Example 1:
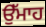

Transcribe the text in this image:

ਉੱਮਾਹ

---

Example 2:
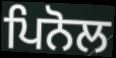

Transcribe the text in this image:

ਪਿਨੋਲ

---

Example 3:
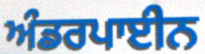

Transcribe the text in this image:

ਅੰਡਰਪਾਈਨ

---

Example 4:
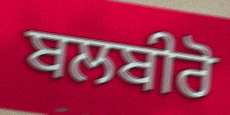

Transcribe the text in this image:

ਬਲਬੀਰੋ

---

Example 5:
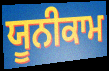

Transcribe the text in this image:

ਯੂਨੀਕਾਮ